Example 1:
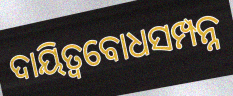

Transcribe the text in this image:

ଦାୟିତ୍ୱବୋଧସମ୍ପନ୍ନ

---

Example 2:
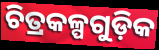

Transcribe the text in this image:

ଚିତ୍ରକଳ୍ପଗୁଡ଼ିକ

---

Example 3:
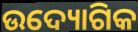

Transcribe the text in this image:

ଉଦ୍ୟୋଗିକ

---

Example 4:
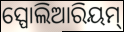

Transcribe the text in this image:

ସ୍ପୋଲିଆରିୟମ୍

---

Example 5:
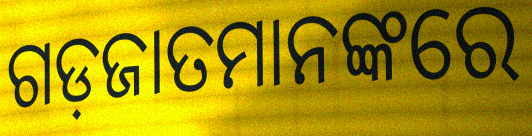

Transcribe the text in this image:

ଗଡ଼ଜାତମାନଙ୍କରେ